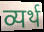
व्यर्थ